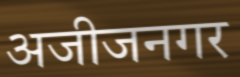
अजीजनगर